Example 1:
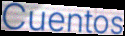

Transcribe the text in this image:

Cuentos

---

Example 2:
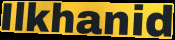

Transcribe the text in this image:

Ilkhanid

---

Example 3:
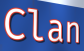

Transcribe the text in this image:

Clan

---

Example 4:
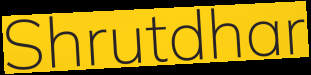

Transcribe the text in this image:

Shrutdhar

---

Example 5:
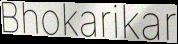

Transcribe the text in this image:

Bhokarikar